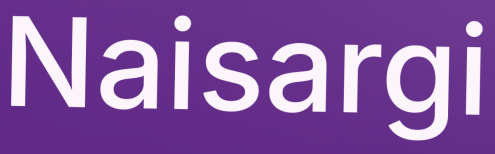
Naisargi